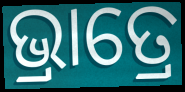
ଭ୍ରାତ୍ରେ